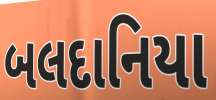
બલદાનિયા